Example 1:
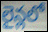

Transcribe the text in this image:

లైన్లలో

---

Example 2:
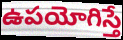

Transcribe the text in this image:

ఉపయోగిస్తే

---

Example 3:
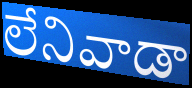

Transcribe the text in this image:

లేనివాడా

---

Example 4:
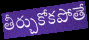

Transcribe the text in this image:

తీర్చుకోకపోతే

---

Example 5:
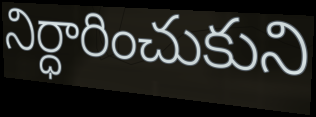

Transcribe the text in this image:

నిర్ధారించుకుని